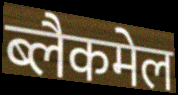
ब्लैकमेल